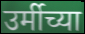
उर्मीच्या